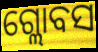
ଗ୍ଲୋବସ